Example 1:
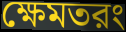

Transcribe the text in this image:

ক্ষেমতরং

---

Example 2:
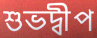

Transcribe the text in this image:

শুভদ্বীপ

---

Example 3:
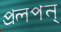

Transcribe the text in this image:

প্রলপন্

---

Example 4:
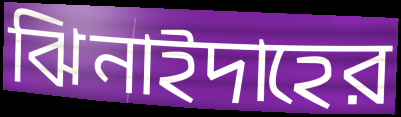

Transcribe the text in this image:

ঝিনাইদাহের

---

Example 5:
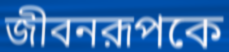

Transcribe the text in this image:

জীবনরূপকে